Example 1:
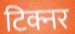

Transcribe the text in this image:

टिक्नर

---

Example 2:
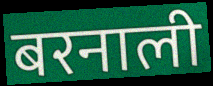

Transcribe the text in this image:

बरनाली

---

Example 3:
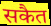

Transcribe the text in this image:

सकैत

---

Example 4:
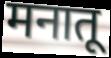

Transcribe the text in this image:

मनातू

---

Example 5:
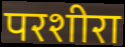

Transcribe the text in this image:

परशीरा